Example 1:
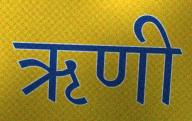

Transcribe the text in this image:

ऋणी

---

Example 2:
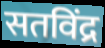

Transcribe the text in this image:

सतविंद्र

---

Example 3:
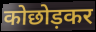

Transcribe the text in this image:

कोछोड़कर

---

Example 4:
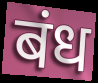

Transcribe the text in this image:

बंध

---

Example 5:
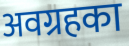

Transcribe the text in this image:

अवग्रहका